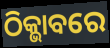
ଠିକ୍ଭାବରେ